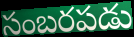
సంబరపడు